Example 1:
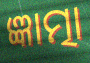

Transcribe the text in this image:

ଜ୍ଞାତ୍ମା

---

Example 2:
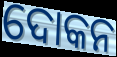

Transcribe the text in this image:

ଦୋକନ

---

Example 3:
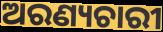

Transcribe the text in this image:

ଅରଣ୍ୟଚାରୀ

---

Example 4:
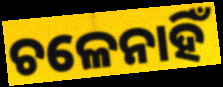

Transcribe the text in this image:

ଚଳେନାହିଁ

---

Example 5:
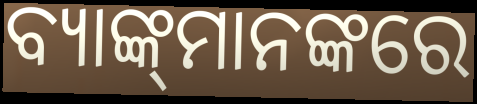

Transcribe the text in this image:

ବ୍ୟାଙ୍କ୍‌ମାନଙ୍କରେ